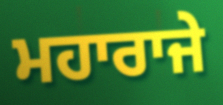
ਮਹਾਰਾਜੇ